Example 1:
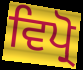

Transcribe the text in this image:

ਵਿਪ੍ਰੋ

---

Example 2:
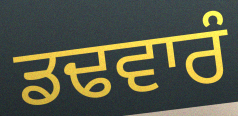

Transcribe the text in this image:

ਡਢਵਾਰੰ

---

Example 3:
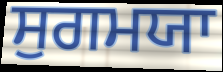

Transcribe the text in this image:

ਸੁਗਮਯਾ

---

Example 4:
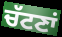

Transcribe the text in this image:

ਚੱਟਣਾਂ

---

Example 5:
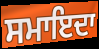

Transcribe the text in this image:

ਸਮਾਇਦਾ